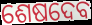
ଶେଷଦେବ